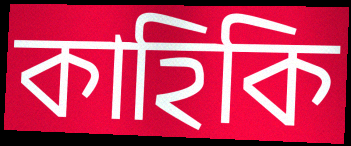
কাহিকি